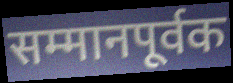
सम्मानपूर्वक